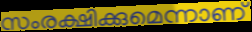
സംരക്ഷിക്കുമെന്നാണ്